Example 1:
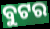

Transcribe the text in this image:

ବୁଟର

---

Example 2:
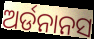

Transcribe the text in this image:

ଅର୍ଡନାନସ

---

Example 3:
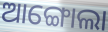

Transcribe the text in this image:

ଆଙ୍ଗୋଲା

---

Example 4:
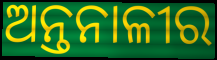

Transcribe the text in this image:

ଅନ୍ତନାଳୀର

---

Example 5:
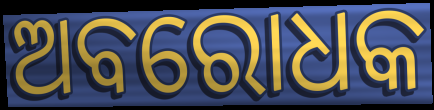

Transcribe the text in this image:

ଅବରୋଧକ